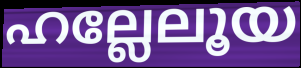
ഹല്ലേലൂയ